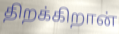
திறக்கிறான்